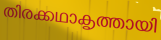
തിരക്കഥാകൃത്തായി